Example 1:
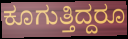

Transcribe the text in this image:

ಕೂಗುತ್ತಿದ್ದರೂ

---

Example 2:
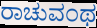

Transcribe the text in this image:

ರಾಚುವಂಥ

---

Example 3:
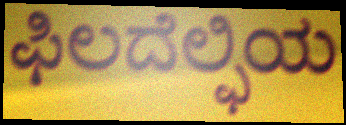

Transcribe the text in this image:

ಫಿಲದೆಲ್ಫಿಯ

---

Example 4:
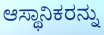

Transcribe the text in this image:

ಆಸ್ಥಾನಿಕರನ್ನು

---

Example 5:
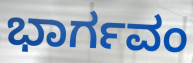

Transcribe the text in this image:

ಭಾರ್ಗವಂ